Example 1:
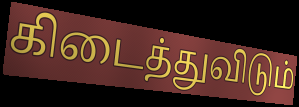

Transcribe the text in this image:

கிடைத்துவிடும்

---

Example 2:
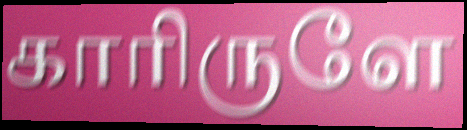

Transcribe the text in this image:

காரிருளே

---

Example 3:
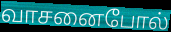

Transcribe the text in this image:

வாசனைபோல்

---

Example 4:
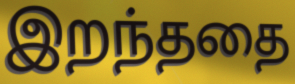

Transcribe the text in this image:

இறந்ததை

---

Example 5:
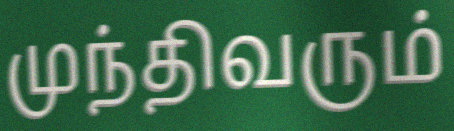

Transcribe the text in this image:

முந்திவரும்